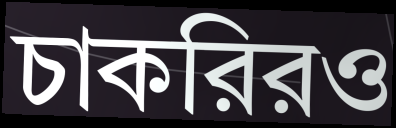
চাকরিরও